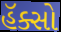
હૅક્સો